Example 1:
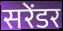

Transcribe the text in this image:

सरेंडर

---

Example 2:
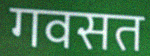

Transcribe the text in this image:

गवसत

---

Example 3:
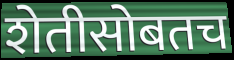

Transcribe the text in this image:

शेतीसोबतच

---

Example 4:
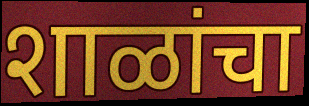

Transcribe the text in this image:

शाळांचा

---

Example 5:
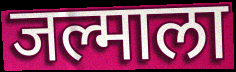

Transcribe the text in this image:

जल्माला